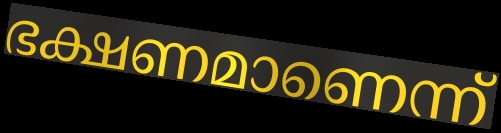
ഭക്ഷണമാണെന്ന്